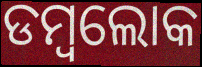
ଡମ୍ବଲୋକ